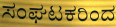
ಸಂಘಟಕರಿಂದ